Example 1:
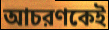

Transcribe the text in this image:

আচরণকেই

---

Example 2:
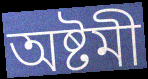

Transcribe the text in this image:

অষ্টমী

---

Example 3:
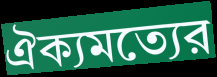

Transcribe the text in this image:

ঐক্যমত্যের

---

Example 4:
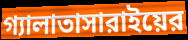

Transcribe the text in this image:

গ্যালাতাসারাইয়ের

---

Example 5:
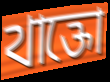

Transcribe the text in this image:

থাক্তো